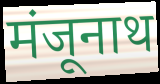
मंजूनाथ